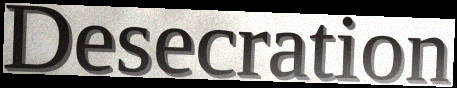
Desecration